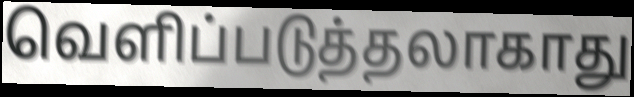
வெளிப்படுத்தலாகாது